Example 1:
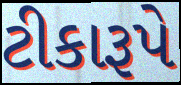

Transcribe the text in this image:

ટીકારૂપે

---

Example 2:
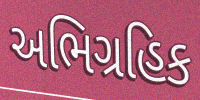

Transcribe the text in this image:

અભિગ્રહિક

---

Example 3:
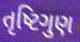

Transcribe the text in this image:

તૃષ્ટિગુણ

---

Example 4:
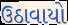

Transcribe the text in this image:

ઉઠાવાયો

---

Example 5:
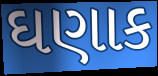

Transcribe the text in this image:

ઘણાક